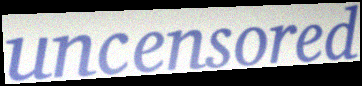
uncensored